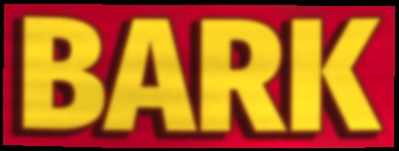
BARK